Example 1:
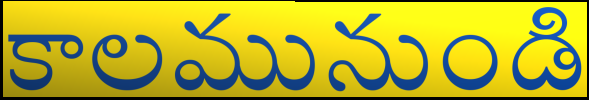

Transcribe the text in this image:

కాలమునుండి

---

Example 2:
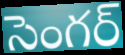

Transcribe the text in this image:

సెంగర్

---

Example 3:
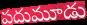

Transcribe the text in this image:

పదుమూడు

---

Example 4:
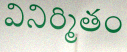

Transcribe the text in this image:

వినిర్మితం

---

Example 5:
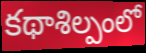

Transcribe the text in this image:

కథాశిల్పంలో